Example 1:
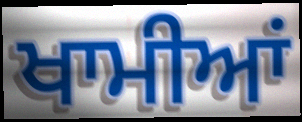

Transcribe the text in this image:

ਖਾਮੀਆਂ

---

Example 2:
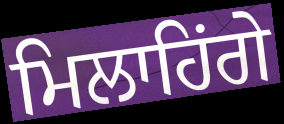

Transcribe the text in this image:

ਮਿਲਾਹਿਂਗੇ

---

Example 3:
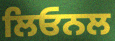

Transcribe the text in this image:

ਲਿਓਨਲ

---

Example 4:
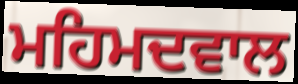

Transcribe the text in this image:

ਮਹਿਮਦਵਾਲ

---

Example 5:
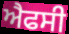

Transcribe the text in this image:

ਐਫਸੀ